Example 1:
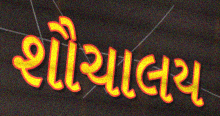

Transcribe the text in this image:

શૌચાલય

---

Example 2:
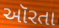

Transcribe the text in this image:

ઑરતા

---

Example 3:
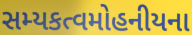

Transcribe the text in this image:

સમ્યકત્વમોહનીયના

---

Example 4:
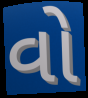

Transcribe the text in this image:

વો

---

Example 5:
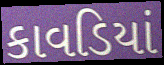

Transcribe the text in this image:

કાવડિયાં